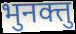
भुनक्तु